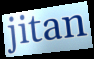
jitan